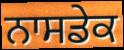
ਨਾਸਡੇਕ